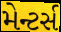
મેન્ટર્સ